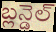
బ్లన్డెల్